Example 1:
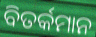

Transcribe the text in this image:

ବିତର୍କମାନ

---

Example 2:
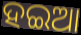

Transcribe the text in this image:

ହଇଆ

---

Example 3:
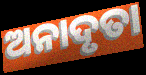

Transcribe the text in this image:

ଅନାଦୃତା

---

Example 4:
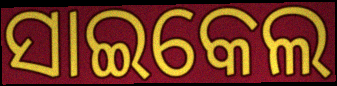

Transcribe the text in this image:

ସାଇକେଲ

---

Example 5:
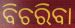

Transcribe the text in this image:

ବିଚରିବା